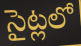
సైట్లలో